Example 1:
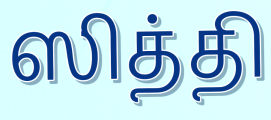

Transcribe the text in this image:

ஸித்தி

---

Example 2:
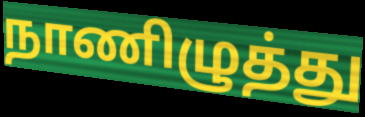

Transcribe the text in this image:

நாணிழுத்து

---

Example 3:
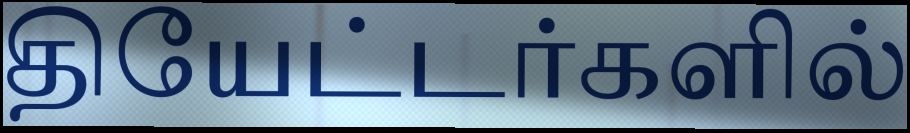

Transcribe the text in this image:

தியேட்டர்களில்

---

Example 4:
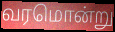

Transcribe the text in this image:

வரமொன்று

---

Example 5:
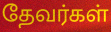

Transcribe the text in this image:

தேவர்கள்